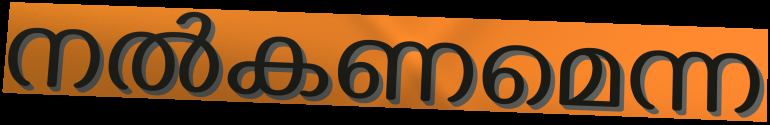
നൽകണമെന്ന